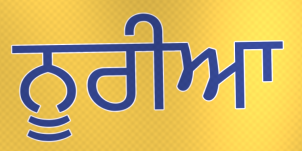
ਨੂਰੀਆ